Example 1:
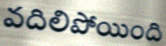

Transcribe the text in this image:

వదిలిపోయింది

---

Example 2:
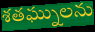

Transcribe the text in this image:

శతఘ్నులను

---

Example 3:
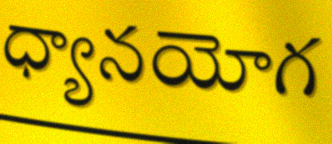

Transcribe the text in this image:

ధ్యానయోగ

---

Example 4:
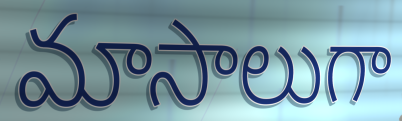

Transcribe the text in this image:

మాసాలుగా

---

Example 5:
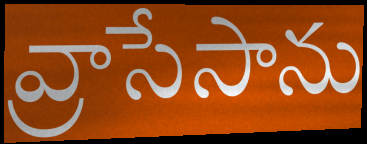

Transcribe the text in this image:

వ్రాసేసాను